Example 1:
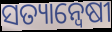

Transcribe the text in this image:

ସତ୍ୟାନ୍ଵେଷୀ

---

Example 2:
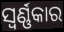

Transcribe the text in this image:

ସ୍ୱର୍ଣ୍ଣକାର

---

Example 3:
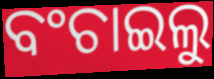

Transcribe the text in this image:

ବଂଚାଇଲୁ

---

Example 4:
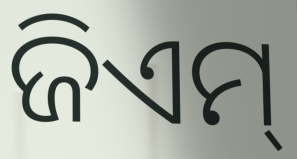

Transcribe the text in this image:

ଜିଏମ୍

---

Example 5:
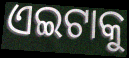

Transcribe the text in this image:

ଏଇଟାକୁ